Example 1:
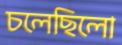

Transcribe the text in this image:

চলেছিলো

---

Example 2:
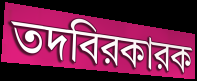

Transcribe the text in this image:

তদবিরকারক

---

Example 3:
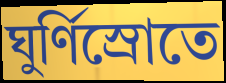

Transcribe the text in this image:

ঘুর্ণিস্রোতে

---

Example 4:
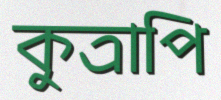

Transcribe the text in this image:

কুত্রাপি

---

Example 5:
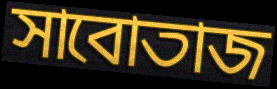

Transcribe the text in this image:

সাবোতাজ